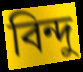
বিন্দু